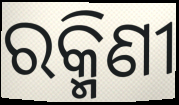
ରକ୍ମିଣୀ